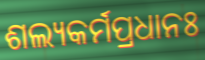
ଶଲ୍ୟକର୍ମପ୍ରଧାନଃ